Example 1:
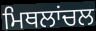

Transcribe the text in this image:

ਮਿਥਲਾਂਚਲ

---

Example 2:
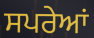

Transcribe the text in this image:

ਸਪਰੇਆਂ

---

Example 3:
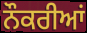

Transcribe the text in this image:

ਨੌਕਰੀਆਂ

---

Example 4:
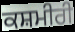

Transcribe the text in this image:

ਕਸ਼ਮੀਰੀ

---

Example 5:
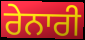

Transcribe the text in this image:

ਰੇਨਾਰੀ